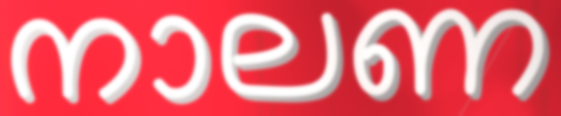
നാലണ